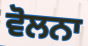
ਵੋਲਨਾ